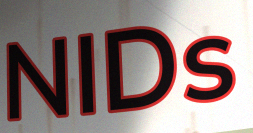
NIDs